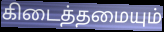
கிடைத்தமையும்